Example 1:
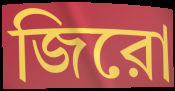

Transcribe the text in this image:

জিরো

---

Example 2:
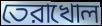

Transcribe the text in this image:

তেরাখোল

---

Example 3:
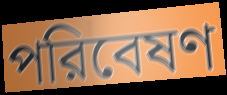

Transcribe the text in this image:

পরিবেষণ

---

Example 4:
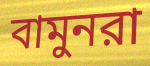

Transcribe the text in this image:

বামুনরা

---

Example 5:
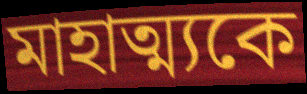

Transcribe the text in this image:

মাহাত্ম্যকে